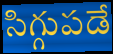
సిగ్గుపడే